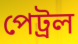
পেট্রল